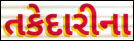
તકેદારીના